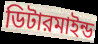
ডিটারমাইন্ড